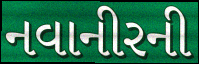
નવાનીરની